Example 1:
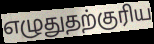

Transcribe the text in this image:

எழுதுதற்குரிய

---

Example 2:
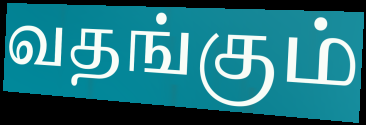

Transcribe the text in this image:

வதங்கும்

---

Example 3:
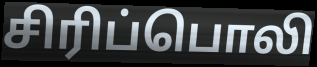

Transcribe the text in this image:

சிரிப்பொலி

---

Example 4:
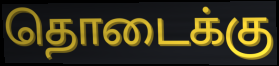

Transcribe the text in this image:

தொடைக்கு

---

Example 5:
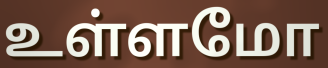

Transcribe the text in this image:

உள்ளமோ